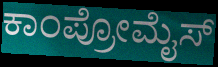
ಕಾಂಪ್ರೋಮೈಸ್